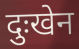
दुःखेन